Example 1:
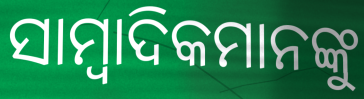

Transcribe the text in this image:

ସାମ୍ବାଦିକମାନଙ୍କୁ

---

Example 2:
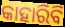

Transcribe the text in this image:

କାହାରିବି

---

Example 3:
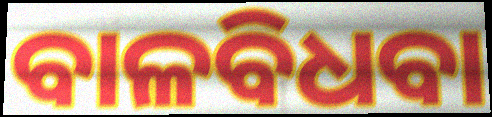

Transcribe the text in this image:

ବାଳବିଧବା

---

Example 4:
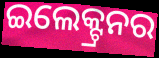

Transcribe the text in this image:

ଇଲେକ୍ଟ୍ରନର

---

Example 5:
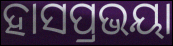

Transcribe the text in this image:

ହାସପ୍ରଭୟା